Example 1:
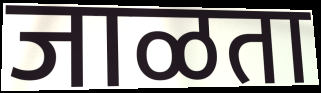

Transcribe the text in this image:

जाळता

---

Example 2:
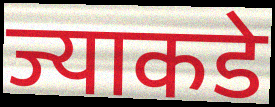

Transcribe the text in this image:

ज्याकडे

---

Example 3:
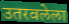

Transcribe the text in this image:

उतरवलेला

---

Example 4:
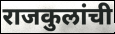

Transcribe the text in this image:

राजकुलांची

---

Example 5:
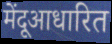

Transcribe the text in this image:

मेंदूआधारित